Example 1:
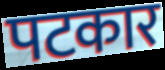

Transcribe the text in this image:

पटकार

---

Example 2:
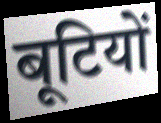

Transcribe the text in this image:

बूटियों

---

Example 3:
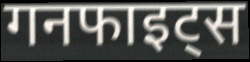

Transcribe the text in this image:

गनफाइट्स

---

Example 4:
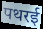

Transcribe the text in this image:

पथरई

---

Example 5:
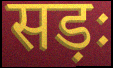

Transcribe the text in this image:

सड़ः